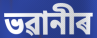
ভৱানীৰ